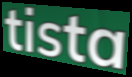
tista